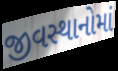
જીવસ્થાનોમાં